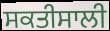
ਸਕਤੀਸਾਲੀ